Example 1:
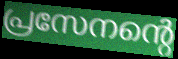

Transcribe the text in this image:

പ്രസേനന്റെ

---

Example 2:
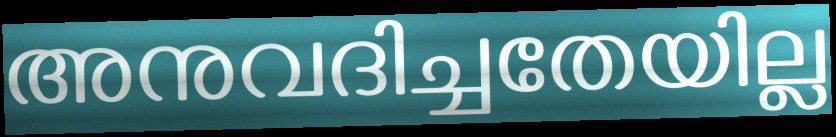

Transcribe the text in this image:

അനുവദിച്ചതേയില്ല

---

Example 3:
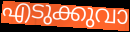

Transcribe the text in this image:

എടുക്കുവാ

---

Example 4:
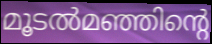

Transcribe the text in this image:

മൂടൽമഞ്ഞിന്റെ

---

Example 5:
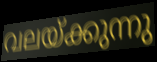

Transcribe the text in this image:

വലയ്ക്കുന്നു